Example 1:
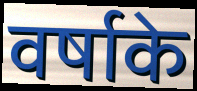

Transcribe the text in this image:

वर्षाके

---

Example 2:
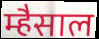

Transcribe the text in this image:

म्हैसाल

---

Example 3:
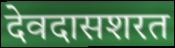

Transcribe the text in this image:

देवदासशरत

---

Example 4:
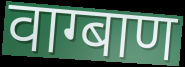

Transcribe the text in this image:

वाग्बाण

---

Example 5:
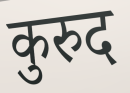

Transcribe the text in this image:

कुरुद